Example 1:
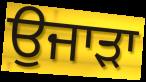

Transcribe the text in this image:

ਉਜਾੜਾ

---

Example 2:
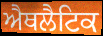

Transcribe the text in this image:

ਐਥਲੈਟਿਕ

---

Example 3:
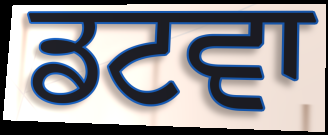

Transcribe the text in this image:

ਡਟਵਾ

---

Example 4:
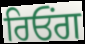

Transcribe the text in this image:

ਰਿਓਂਗ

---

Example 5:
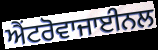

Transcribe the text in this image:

ਐਂਟਰੋਵਾਜਾਈਨਲ